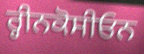
ਰ੍ਹੀਨਕੋਸੀਓਨ